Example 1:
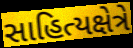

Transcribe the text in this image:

સાહિત્યક્ષેત્રે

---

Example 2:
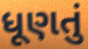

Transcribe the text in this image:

ધૂણતું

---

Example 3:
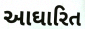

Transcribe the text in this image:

આઘારિત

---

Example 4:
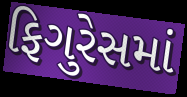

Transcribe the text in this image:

ફિગુરેસમાં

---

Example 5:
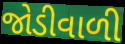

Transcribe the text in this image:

જોડીવાળી